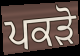
ਪਕੜੋ